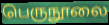
பெருநூலை